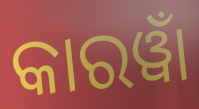
କାରୱାଁ